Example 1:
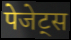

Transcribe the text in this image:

पेजेट्स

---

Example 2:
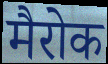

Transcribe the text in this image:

मैरोक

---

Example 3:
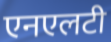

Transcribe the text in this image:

एनएलटी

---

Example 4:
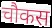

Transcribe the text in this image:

चौकस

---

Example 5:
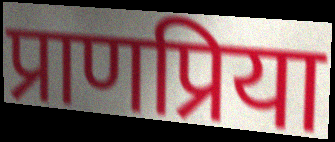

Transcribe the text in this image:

प्राणप्रिया